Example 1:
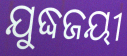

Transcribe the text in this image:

ଯୁଦ୍ଧଜୟୀ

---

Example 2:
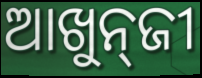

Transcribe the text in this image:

ଆଖୁନ୍‌ଜୀ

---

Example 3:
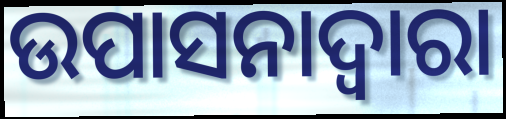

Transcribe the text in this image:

ଉପାସନାଦ୍ଵାରା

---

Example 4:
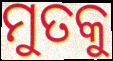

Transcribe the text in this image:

ମୁତକୁ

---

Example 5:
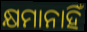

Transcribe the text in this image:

କ୍ଷମାନାହିଁ